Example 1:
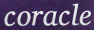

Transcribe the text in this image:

coracle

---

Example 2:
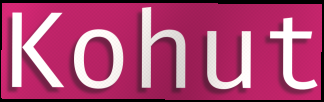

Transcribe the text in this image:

Kohut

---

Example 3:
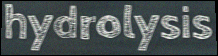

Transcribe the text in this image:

hydrolysis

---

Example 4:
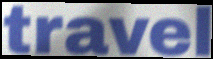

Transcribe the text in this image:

travel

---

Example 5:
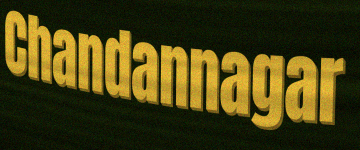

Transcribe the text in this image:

Chandannagar